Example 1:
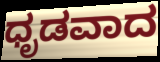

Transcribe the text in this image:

ಧೃಡವಾದ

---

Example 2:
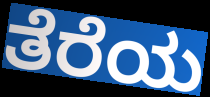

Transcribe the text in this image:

ತೆರೆಯ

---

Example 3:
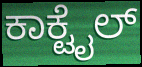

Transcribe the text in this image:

ಕಾಕ್ಟೈಲ್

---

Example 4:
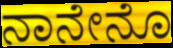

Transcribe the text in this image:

ನಾನೇನೊ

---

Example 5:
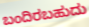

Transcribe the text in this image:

ಬಂದಿರಬಹುದು